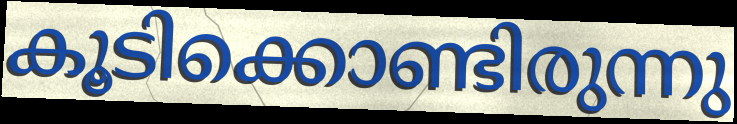
കൂടിക്കൊണ്ടിരുന്നു